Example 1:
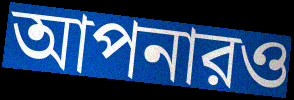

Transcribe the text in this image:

আপনারও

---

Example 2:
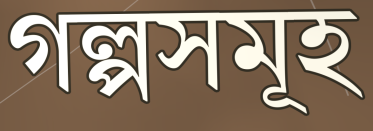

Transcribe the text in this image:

গল্পসমূহ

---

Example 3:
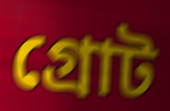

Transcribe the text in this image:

গ্রোট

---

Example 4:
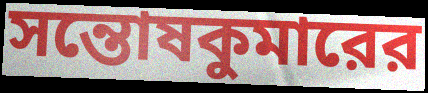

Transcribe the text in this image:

সন্তোষকুমারের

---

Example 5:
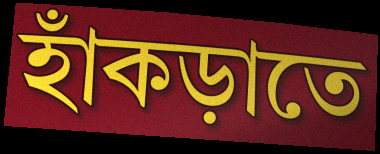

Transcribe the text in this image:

হাঁকড়াতে